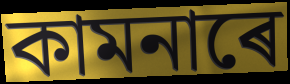
কামনাৰে